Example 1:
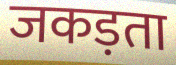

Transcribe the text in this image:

जकड़ता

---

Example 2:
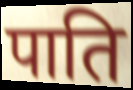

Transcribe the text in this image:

पाति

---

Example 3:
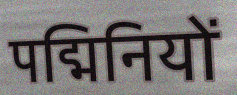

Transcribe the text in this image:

पद्मिनियों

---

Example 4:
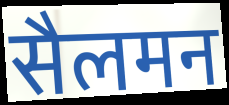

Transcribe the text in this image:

सैलमन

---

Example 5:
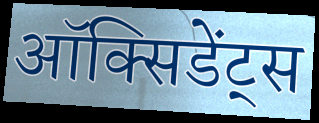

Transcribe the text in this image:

ऑक्सिडेंट्स